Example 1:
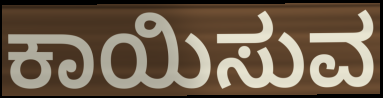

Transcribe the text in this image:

ಕಾಯಿಸುವ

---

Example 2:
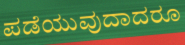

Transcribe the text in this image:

ಪಡೆಯುವುದಾದರೂ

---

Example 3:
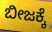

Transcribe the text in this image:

ಬೀಜಕ್ಕೆ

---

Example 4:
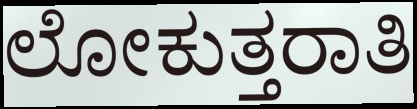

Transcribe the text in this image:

ಲೋಕುತ್ತರಾತಿ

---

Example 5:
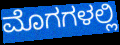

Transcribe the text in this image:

ಮೊಗಗಳಲ್ಲಿ